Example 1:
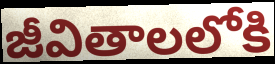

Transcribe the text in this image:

జీవితాలలోకి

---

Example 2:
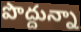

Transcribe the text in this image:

పొద్దున్నా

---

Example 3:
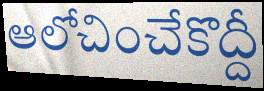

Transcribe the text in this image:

ఆలోచించేకొద్దీ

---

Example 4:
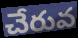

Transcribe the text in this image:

చేరువ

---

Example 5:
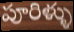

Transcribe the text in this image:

పూరిళ్ళు